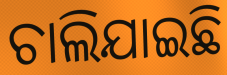
ଚାଲିଯାଇଛି